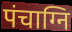
पंचाग्नि